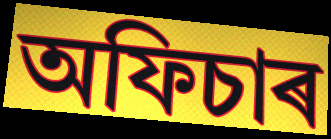
অফিচাৰ